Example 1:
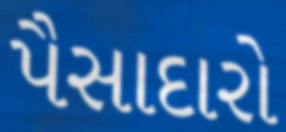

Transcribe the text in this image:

પૈસાદારો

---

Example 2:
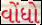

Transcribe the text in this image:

વોંધો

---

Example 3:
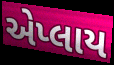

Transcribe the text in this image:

એપ્લાય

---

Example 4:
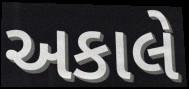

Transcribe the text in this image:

અકાલે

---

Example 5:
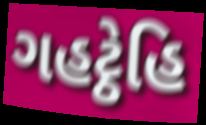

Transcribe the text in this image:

ગહટ્ઠેહિ